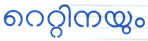
റെറ്റിനയും